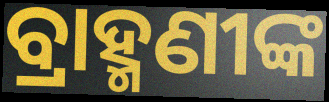
ବ୍ରାହ୍ମଣୀଙ୍କ